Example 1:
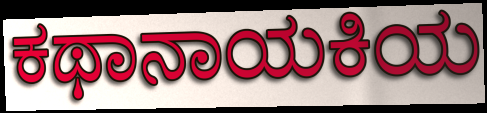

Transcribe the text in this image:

ಕಥಾನಾಯಕಿಯ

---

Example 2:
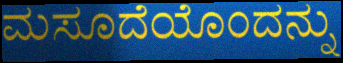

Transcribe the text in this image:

ಮಸೂದೆಯೊಂದನ್ನು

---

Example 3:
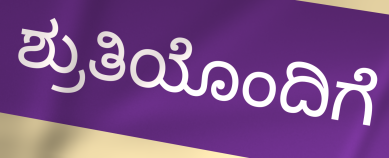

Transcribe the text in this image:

ಶ್ರುತಿಯೊಂದಿಗೆ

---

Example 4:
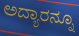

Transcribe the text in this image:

ಅದ್ಯಾರನ್ನೂ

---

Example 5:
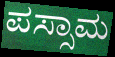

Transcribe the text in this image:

ಪಸ್ಸಾಮ